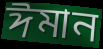
ঈমান